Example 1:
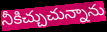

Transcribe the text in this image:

నీకిచ్చుచున్నాను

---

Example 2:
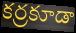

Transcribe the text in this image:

కర్రకూడా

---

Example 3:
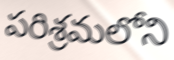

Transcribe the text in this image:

పరిశ్రమలోని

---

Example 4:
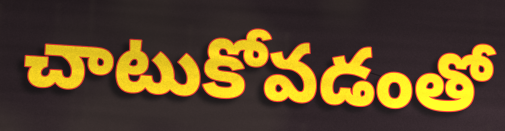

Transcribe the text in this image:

చాటుకోవడంతో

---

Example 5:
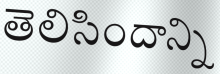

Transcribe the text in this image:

తెలిసిందాన్ని